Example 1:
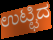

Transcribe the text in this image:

ಉಟ್ಟಿದ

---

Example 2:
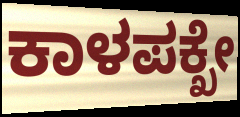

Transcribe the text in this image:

ಕಾಳಪಕ್ಖೇ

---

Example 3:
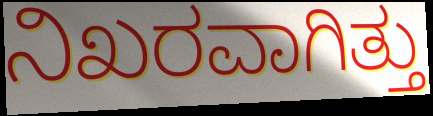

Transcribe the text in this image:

ನಿಖರವಾಗಿತ್ತು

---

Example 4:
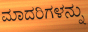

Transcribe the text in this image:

ಮಾದರಿಗಳನ್ನು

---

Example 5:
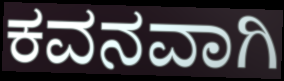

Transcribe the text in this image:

ಕವನವಾಗಿ